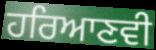
ਹਰਿਆਣਵੀ